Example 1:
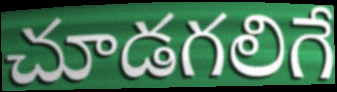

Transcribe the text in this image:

చూడగలిగే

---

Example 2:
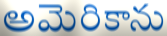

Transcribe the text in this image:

అమెరికాను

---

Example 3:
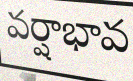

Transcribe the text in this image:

వర్షాభావ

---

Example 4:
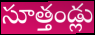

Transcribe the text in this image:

సూత్తండ్లు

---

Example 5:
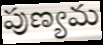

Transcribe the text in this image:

పుణ్యమ